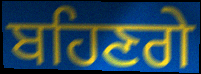
ਬਹਿਣਗੇ